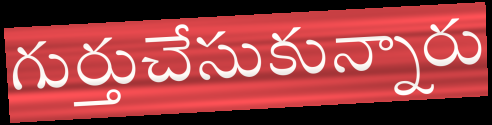
గుర్తుచేసుకున్నారు